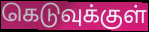
கெடுவுக்குள்